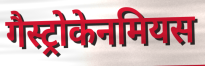
गैस्ट्रोकेनमियस